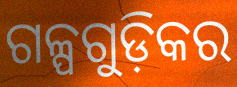
ଗଳ୍ପଗୁଡ଼ିକର